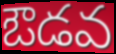
ఔడవ